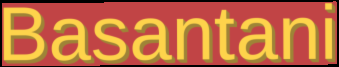
Basantani